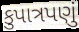
કુપાત્રપણું